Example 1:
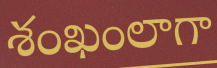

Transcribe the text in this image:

శంఖంలాగా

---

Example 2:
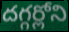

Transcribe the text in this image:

దగ్గర్లోని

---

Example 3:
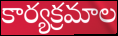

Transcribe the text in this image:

కార్యక్రమాల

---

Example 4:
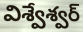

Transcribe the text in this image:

విశ్వేశ్వర్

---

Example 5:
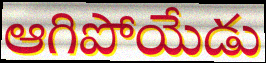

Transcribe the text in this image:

ఆగిపోయేడు